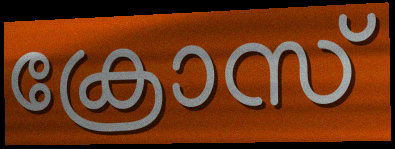
ക്രോസ്